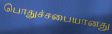
பொதுச்சபையானது